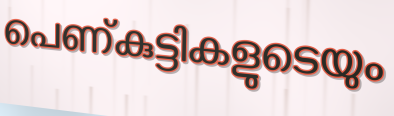
പെണ്കുട്ടികളുടെയും